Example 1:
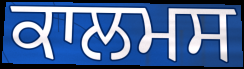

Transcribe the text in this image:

ਕਾਲਮਸ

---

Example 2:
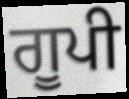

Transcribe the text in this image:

ਗੂਪੀ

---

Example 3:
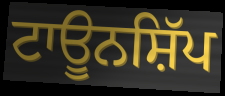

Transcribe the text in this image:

ਟਾਊਨਸ਼ਿੱਪ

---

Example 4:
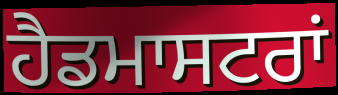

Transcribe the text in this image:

ਹੈਡਮਾਸਟਰਾਂ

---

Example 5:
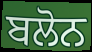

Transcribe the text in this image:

ਬਲੋਨ